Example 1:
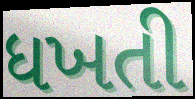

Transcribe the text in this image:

ધખતી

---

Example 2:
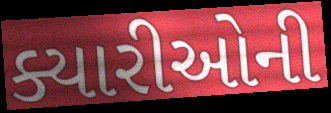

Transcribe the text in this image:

ક્યારીઓની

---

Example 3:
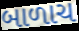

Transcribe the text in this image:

બાળાચ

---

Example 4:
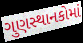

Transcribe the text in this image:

ગુણસ્થાનકોમાં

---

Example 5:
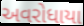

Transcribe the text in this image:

અવરોધાયા